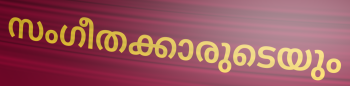
സംഗീതക്കാരുടെയും